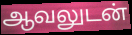
ஆவலுடன்